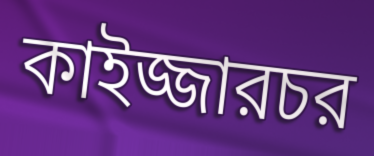
কাইজ্জারচর